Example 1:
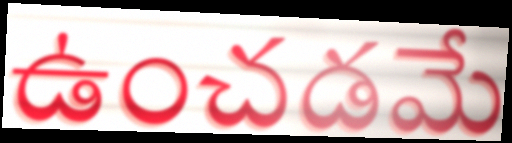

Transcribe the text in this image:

ఉంచడమే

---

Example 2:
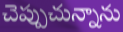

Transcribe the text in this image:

చెప్పుచున్నాను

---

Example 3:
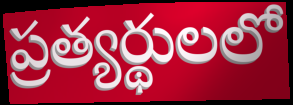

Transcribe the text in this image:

ప్రత్యర్థులలో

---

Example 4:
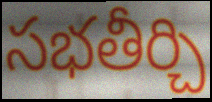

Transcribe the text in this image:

సభతీర్చి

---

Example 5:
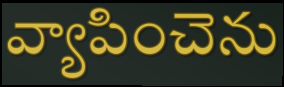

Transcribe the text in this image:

వ్యాపించెను